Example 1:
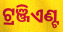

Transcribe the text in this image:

ଟ୍ରଞ୍ଜିଏଣ୍ଟ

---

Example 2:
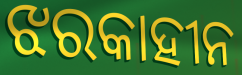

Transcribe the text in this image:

ଝରକାହୀନ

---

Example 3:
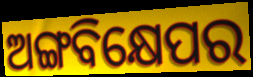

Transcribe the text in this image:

ଅଙ୍ଗବିକ୍ଷେପର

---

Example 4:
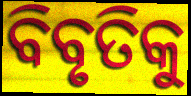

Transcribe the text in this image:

ବିବୃତିକୁ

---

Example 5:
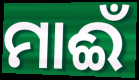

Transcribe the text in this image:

ମାଈଁ